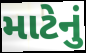
માટેનું